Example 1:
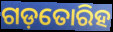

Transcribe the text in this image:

ଗଡ଼ତୋରିହ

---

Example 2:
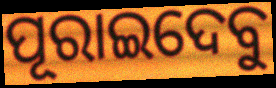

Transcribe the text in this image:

ପୂରାଇଦେବୁ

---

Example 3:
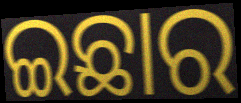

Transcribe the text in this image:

ଇଛାର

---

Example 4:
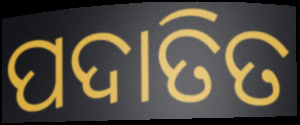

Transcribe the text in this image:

ପଦାତିତ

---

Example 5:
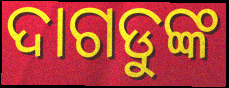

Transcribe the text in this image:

ଦାଗଡୁଙ୍କ